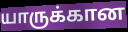
யாருக்கான